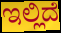
ಇಲ್ಲಿದೆ